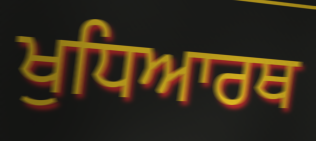
ਖੁਧਿਆਰਥ